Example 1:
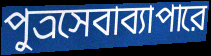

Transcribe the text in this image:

পুত্রসেবাব্যাপারে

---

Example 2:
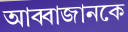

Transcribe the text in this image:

আব্বাজানকে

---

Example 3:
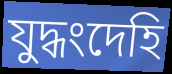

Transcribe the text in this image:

যুদ্ধংদেহি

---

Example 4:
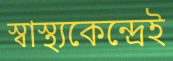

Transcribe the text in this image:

স্বাস্থ্যকেন্দ্রেই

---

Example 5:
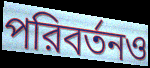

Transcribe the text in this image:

পরিবর্তনও